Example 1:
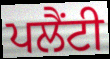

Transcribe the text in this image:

ਪਲੈਂਟੀ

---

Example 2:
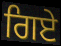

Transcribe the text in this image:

ਗਿਏ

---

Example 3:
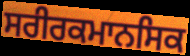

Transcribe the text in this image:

ਸਰੀਰਕਮਾਨਸਿਕ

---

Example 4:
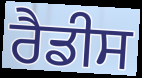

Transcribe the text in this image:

ਰੈਡੀਸ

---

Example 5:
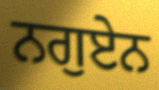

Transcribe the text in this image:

ਨਗੁਏਨ